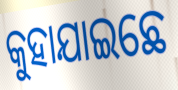
କୁହାଯାଇଛେ